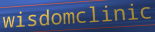
wisdomclinic